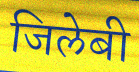
जिलेबी